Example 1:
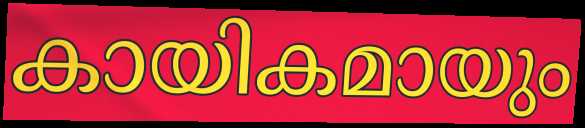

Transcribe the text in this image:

കായികമായും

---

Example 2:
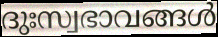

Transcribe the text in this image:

ദുഃസ്വഭാവങ്ങൾ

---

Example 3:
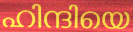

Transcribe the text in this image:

ഹിന്ദിയെ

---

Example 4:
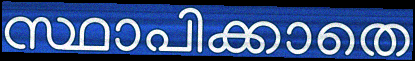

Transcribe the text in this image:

സ്ഥാപിക്കാതെ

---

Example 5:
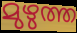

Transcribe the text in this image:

മുഴുത്ത